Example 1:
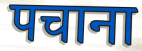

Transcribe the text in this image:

पचाना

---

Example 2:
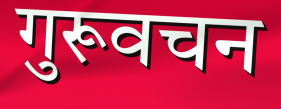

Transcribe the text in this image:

गुरूवचन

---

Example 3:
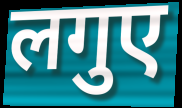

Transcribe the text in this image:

लगुए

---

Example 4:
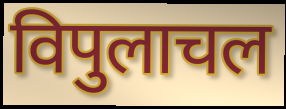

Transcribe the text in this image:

विपुलाचल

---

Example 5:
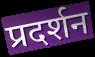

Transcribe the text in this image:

प्रदर्शन